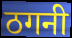
ठगनी